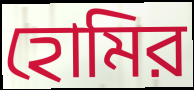
হোমির